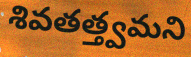
శివతత్త్వమని